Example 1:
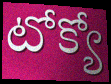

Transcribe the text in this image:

టోక్యో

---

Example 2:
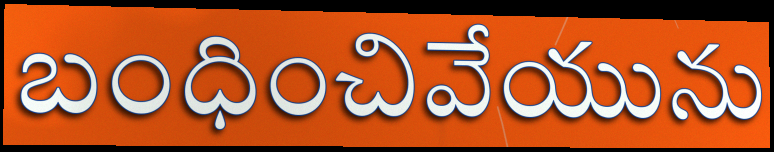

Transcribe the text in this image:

బంధించివేయును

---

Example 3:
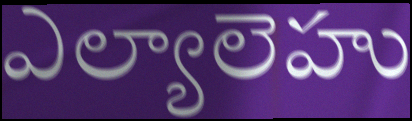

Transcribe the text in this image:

ఎల్యాలెహు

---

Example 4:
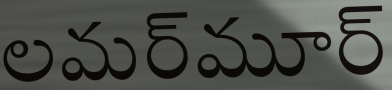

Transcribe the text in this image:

లమర్‌మూర్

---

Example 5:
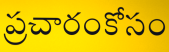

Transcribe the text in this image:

ప్రచారంకోసం